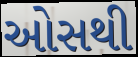
ઓસથી